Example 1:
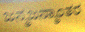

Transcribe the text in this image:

ಜನ್ಮಜನ್ಮಾಂತರ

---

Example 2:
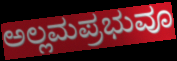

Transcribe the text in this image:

ಅಲ್ಲಮಪ್ರಭುವೂ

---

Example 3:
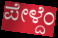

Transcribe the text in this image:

ಪೇಳ್ದೆಂ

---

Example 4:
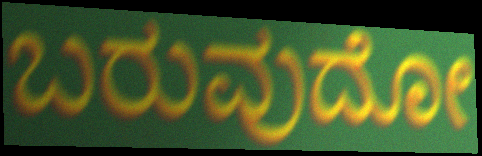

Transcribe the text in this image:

ಬರುವುದೋ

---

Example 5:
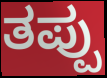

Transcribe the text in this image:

ತಪ್ಪು